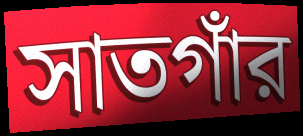
সাতগাঁর